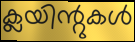
ക്ലയിന്റുകൾ